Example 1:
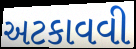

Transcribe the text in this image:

અટકાવવી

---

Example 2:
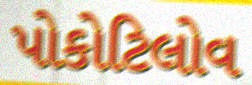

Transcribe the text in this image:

પોકોટિલોવ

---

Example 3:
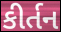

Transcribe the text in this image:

કીર્તન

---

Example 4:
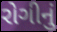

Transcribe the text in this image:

રોગીનું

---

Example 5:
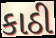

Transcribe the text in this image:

કાઠી